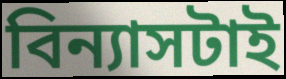
বিন্যাসটাই